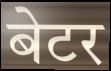
बेटर